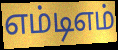
எம்டிஎம்